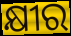
କ୍ଷୀର